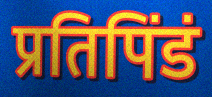
प्रतिपिंडं